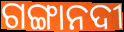
ଗଙ୍ଗାନଦୀ